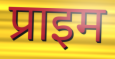
प्राइम